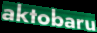
aktobaru